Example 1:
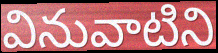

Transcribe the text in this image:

వినువాటిని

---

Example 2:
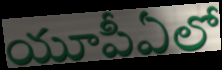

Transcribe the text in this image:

యూపీఏలో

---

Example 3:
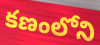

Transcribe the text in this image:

కణంలోని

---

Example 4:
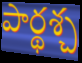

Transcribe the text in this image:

పార్థశ్చ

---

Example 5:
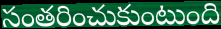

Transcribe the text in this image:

సంతరించుకుంటుంది